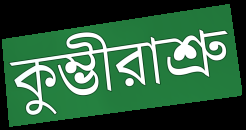
কুম্ভীরাশ্রু